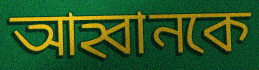
আহ্বানকে